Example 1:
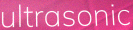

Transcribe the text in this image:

ultrasonic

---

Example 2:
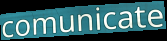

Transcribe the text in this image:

comunicate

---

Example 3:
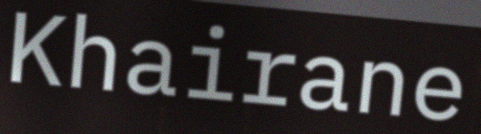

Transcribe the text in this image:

Khairane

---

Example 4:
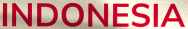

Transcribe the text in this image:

INDONESIA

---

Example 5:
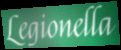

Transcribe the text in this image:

Legionella